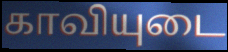
காவியுடை